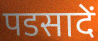
पडसादें